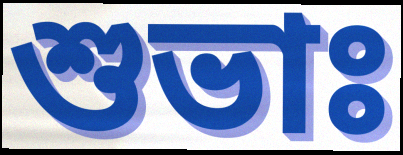
শুভাঃ